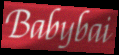
Babybai